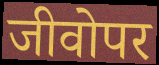
जीवोपर